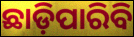
ଛାଡ଼ିପାରିବି